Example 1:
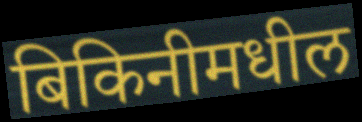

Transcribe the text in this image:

बिकिनीमधील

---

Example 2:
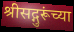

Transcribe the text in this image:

श्रीसद्गुरूंच्या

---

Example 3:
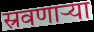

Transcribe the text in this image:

स्रवणाऱ्या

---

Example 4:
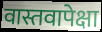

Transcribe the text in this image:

वास्तवापेक्षा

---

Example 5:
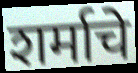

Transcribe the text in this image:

शर्माचे